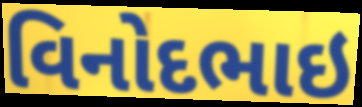
વિનોદભાઇ